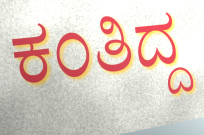
ಕಂತಿದ್ದ